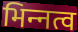
भिन्नत्व